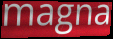
magna